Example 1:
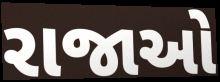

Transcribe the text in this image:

રાજાઓ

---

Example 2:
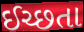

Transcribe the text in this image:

ઈચ્છતા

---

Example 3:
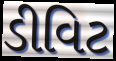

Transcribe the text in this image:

ડીવિટ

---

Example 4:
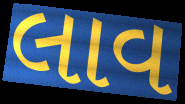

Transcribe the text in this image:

લાવ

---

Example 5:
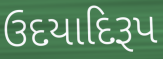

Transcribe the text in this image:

ઉદયાદિરૂપ